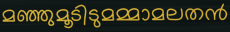
മഞ്ഞുമൂടിടുമമ്മാമലതൻ